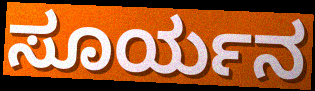
ಸೂರ್ಯನ